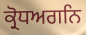
ਕ੍ਰੋਧਅਗਨਿ